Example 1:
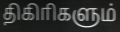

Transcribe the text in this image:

திகிரிகளும்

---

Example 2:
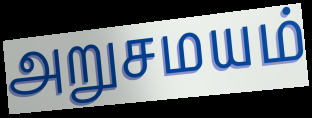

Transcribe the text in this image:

அறுசமயம்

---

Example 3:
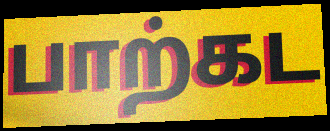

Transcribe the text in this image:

பாற்கட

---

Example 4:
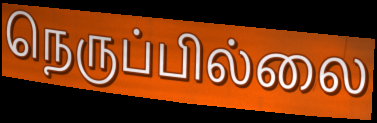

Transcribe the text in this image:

நெருப்பில்லை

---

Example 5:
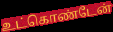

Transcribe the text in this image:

உட்கொண்டேன்